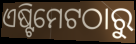
ଏଷ୍ଟିମେଟଠାରୁ